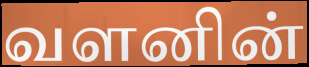
வளனின்